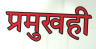
प्रमुखही